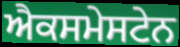
ਐਕਸਮੇਸਟੇਨ